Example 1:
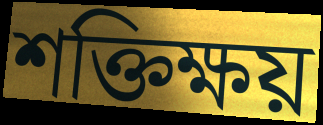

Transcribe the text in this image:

শক্তিক্ষয়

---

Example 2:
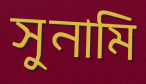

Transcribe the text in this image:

সুনামি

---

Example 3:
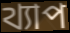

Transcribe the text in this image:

থ্যাপ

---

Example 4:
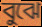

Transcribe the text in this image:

বুঝে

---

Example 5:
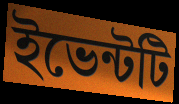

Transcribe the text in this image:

ইভেন্টটি